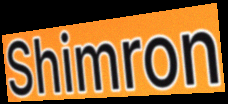
Shimron